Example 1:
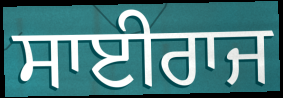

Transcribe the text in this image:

ਸਾਈਰਾਜ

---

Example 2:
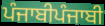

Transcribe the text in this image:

ਪੰਜਾਬੀਪੰਜਾਬੀ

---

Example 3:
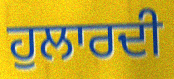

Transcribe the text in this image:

ਹੁਲਾਰਦੀ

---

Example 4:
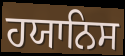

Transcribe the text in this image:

ਹਯਾਨਿਸ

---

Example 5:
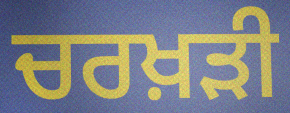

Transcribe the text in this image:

ਚਰਖ਼ੜੀ